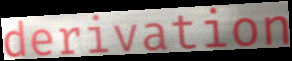
derivation